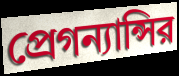
প্রেগন্যান্সির